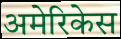
अमेरिकेस